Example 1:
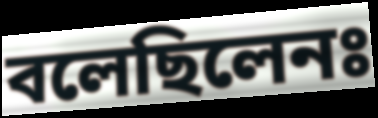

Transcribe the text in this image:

বলেছিলেনঃ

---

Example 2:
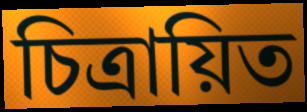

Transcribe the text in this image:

চিত্রায়িত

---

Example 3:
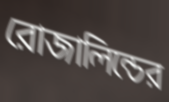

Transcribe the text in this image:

রোজালিন্ডের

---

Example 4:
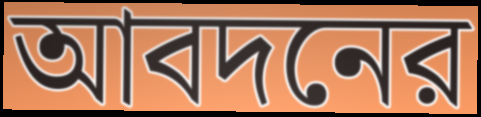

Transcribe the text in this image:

আবদনের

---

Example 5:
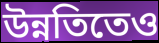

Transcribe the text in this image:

উন্নতিতেও